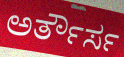
ಅರ್ತೌರ್ಸ